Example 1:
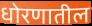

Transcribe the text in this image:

धोरणातील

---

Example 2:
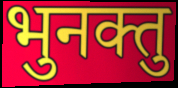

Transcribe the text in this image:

भुनक्तु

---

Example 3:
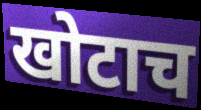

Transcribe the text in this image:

खोटाच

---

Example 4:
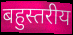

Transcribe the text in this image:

बहुस्तरीय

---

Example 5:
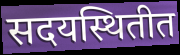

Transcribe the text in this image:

सदयस्थितीत